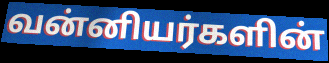
வன்னியர்களின்